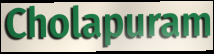
Cholapuram